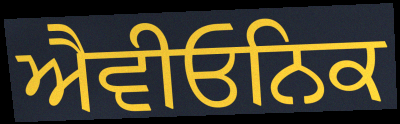
ਐਵੀਓਨਿਕ